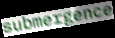
submergence